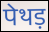
पेथड़